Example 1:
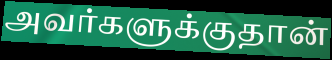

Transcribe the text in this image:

அவர்களுக்குதான்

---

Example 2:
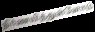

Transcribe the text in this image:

நிர்ணயித்துள்ளோம்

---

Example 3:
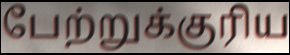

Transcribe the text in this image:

பேற்றுக்குரிய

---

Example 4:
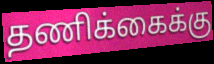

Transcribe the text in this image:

தணிக்கைக்கு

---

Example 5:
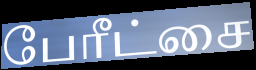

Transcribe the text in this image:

பேரீட்சை